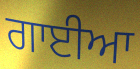
ਗਾਈਆ